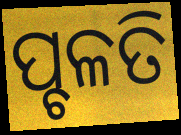
ପ୍ଚଳତି